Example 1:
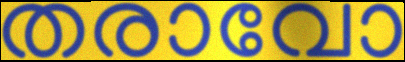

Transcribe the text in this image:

തരാവോ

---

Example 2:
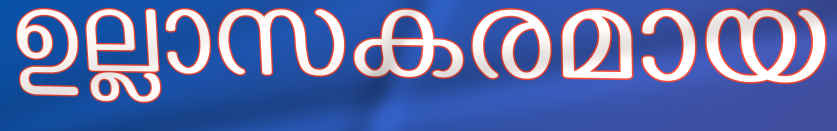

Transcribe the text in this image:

ഉല്ലാസകരമായ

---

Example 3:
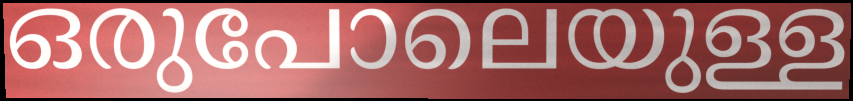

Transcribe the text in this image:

ഒരുപോലെയുള്ള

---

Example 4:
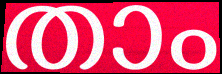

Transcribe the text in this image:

താം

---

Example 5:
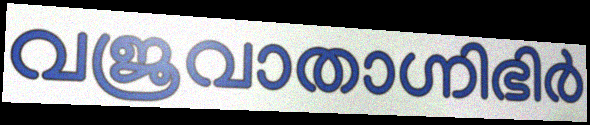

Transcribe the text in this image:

വജ്രവാതാഗ്നിഭിർ